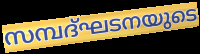
സമ്പദ്ഘടനയുടെ